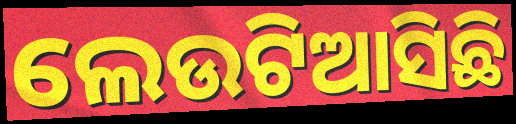
ଲେଉଟିଆସିଛି